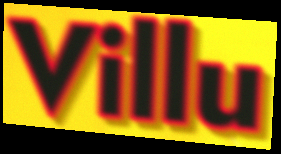
Villu